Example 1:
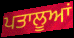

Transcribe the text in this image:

ਪਤਾਲੂਆਂ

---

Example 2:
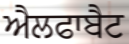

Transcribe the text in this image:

ਐਲਫਾਬੈਟ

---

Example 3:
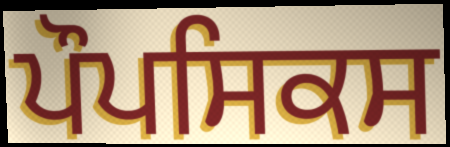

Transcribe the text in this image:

ਪੌਪਸਿਕਸ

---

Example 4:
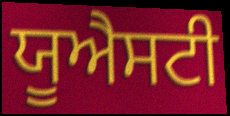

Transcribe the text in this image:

ਯੂਐਸਟੀ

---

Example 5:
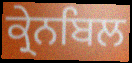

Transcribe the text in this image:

ਕ੍ਰੇਨਬਿਲ